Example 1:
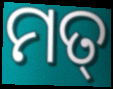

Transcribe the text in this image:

ମତ୍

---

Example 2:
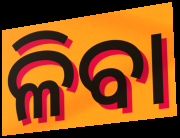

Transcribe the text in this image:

ଳିବା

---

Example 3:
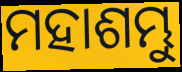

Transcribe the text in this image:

ମହାଶମ୍ଭୁ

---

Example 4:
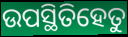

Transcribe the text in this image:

ଉପସ୍ଥିତିହେତୁ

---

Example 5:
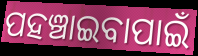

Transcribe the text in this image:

ପହଞ୍ଚାଇବାପାଇଁ